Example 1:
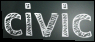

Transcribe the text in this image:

civic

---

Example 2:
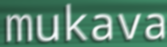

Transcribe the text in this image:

mukava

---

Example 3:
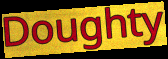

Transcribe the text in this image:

Doughty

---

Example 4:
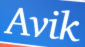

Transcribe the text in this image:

Avik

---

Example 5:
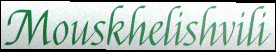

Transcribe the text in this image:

Mouskhelishvili